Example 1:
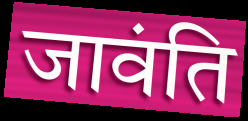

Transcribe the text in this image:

जावंति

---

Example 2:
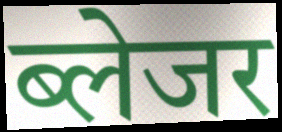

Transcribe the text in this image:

ब्लेजर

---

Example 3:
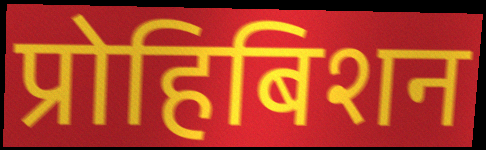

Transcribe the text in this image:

प्रोहिबिशन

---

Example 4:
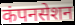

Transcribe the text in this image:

कंपनसेशन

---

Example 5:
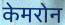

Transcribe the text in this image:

केमरोन